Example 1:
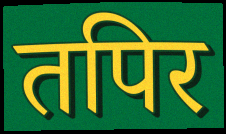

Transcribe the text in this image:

तपिर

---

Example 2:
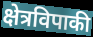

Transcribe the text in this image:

क्षेत्रविपाकी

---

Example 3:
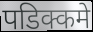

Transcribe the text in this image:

पडिक्कमे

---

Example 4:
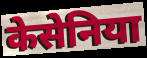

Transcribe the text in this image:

केसेनिया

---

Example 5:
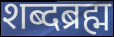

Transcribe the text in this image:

शब्दब्रह्म